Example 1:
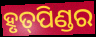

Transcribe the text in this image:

ହୃତ୍‍ପିଣ୍ଡର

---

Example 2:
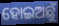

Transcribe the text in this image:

ହୋଇଅଛୁଁ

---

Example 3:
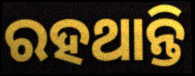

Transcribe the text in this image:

ରହଥାନ୍ତି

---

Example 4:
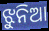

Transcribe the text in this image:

ଝୁନିଆ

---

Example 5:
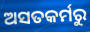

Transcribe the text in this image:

ଅସତକର୍ମରୁ